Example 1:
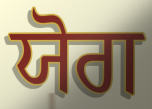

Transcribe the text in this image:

ਯੋਗ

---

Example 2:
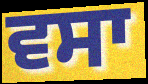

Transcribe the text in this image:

ਵਸਾ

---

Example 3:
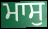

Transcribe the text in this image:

ਮਾਸੁ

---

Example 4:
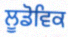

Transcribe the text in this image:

ਲੂਡੋਵਿਕ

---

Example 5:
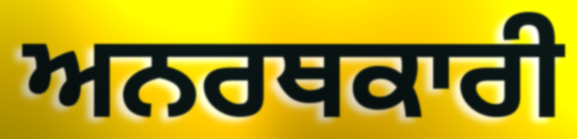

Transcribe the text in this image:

ਅਨਰਥਕਾਰੀ